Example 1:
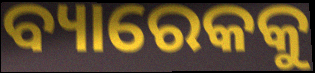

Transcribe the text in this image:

ବ୍ୟାରେକକୁ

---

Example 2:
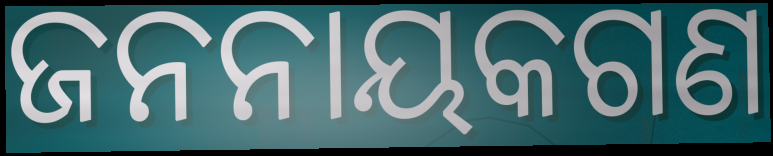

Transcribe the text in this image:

ଜନନାୟକଗଣ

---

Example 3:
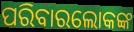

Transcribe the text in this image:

ପରିବାରଲୋକଙ୍କ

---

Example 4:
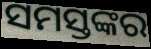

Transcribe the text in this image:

ସମସ୍ତଙ୍କର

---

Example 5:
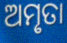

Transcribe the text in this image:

ଅମୃତା